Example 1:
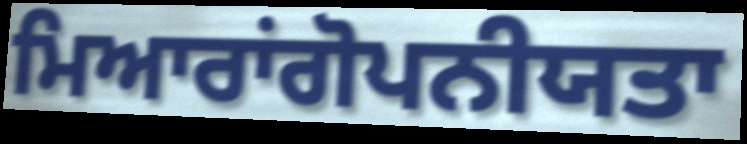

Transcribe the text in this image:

ਮਿਆਰਾਂਗੋਪਨੀਯਤਾ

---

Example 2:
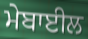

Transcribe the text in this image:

ਮੇਬਾਈਲ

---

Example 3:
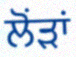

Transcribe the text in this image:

ਲੋਂੜਾਂ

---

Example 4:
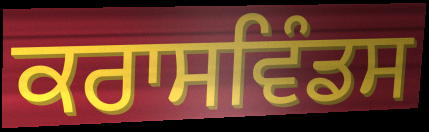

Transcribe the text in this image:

ਕਰਾਸਵਿੰਡਸ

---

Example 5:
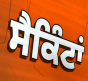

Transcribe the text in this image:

ਸੈਕਿੰਟਾਂ